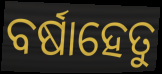
ବର୍ଷାହେତୁ